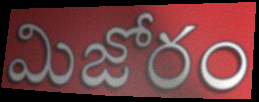
మిజోరం